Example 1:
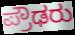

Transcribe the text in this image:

ಪ್ರೌಢರು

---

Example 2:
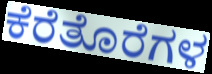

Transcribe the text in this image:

ಕೆರೆತೊರೆಗಳ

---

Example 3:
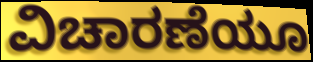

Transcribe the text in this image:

ವಿಚಾರಣೆಯೂ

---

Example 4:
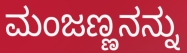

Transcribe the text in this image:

ಮಂಜಣ್ಣನನ್ನು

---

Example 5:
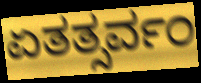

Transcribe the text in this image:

ಏತತ್ಸರ್ವಂ